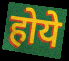
होये